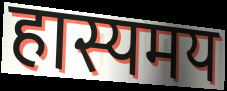
हास्यमय